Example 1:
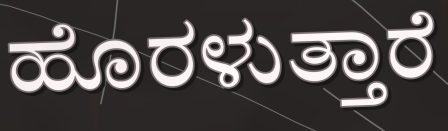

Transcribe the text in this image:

ಹೊರಳುತ್ತಾರೆ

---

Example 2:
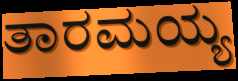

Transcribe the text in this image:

ತಾರಮಯ್ಯ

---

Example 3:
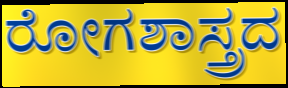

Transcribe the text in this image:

ರೋಗಶಾಸ್ತ್ರದ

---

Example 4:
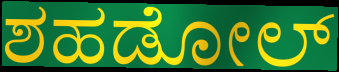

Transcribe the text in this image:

ಶಹಡೋಲ್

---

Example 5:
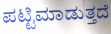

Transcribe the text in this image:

ಪಟ್ಟಿಮಾಡುತ್ತದೆ